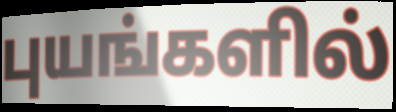
புயங்களில்